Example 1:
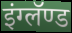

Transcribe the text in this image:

इंग्लॅण्ड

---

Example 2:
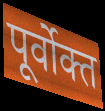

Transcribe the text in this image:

पूर्वोक्त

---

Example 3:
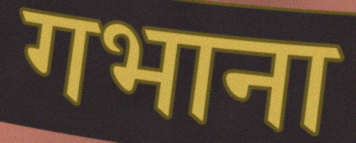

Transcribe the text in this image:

गभाना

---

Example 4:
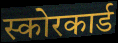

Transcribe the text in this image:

स्कोरकार्ड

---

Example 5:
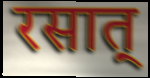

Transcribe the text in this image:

रसात्